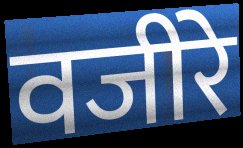
वजीरे